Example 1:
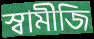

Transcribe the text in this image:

স্বামীজি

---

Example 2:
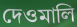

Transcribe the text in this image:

দেওমালি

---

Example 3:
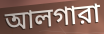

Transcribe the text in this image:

আলগারা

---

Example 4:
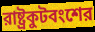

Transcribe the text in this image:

রাষ্ট্রকুটবংশের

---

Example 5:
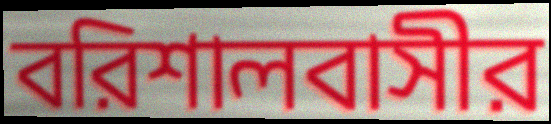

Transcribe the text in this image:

বরিশালবাসীর